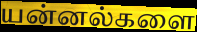
யன்னல்களை